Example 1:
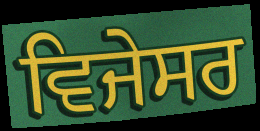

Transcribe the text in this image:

ਵਿਜੇਸਰ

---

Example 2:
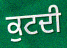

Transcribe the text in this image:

ਕੁਟਦੀ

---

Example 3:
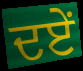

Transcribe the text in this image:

ਦਏਂ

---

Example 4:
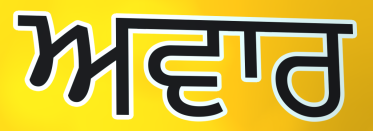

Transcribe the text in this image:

ਅਵਾਰ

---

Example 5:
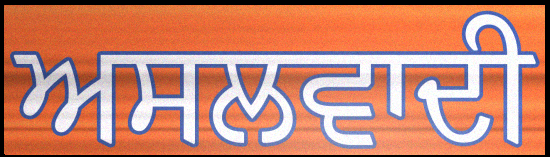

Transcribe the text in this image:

ਅਸਲਵਾਦੀ